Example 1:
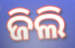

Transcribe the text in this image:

ଜିଲି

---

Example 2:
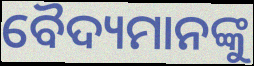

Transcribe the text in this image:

ବୈଦ୍ୟମାନଙ୍କୁ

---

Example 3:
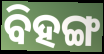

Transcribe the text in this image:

ବିହଙ୍ଗ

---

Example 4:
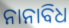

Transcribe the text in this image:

ନାନାବିଧ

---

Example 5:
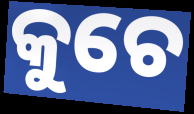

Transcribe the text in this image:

କୁଚେ